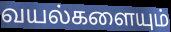
வயல்களையும்